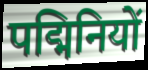
पद्मिनियों